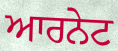
ਆਰਨੇਟ